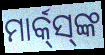
ମାର୍କ୍‌ସ୍‌ଙ୍କ